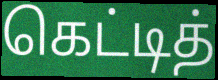
கெட்டித்